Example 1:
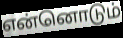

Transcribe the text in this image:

என்னொடும்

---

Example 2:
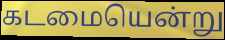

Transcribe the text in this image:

கடமையென்று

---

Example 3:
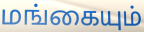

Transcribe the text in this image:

மங்கையும்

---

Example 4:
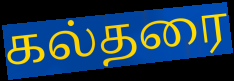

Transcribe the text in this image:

கல்தரை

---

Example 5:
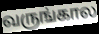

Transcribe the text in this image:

வருங்கால